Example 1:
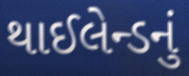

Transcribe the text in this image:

થાઈલેન્ડનું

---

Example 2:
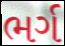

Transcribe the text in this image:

ભર્ગ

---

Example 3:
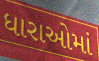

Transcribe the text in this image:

ધારાઓમાં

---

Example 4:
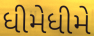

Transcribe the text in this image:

ધીમેધીમે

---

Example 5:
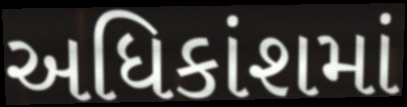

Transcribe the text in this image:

અધિકાંશમાં